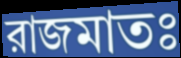
রাজমাতঃ